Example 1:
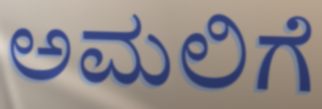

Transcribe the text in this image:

ಅಮಲಿಗೆ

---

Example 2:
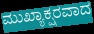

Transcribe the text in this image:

ಮುಖ್ಯಾಕ್ಷರವಾದ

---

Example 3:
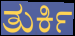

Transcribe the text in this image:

ತುರ್ಕಿ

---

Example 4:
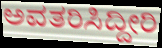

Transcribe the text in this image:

ಅವತರಿಸಿದ್ದೀರಿ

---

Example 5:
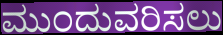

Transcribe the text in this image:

ಮುಂದುವರಿಸಲು